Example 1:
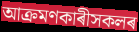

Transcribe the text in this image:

আক্ৰমণকাৰীসকলৰ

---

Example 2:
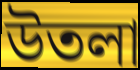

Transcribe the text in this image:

উতলা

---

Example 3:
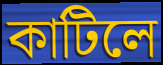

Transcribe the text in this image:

কাটিলে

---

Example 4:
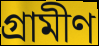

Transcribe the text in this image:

গ্ৰামীণ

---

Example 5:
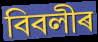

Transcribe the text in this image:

বিবলীৰ